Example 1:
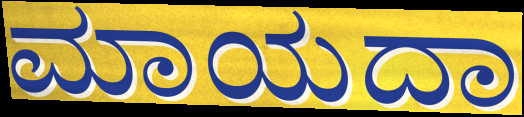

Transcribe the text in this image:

ಮಾಯದಾ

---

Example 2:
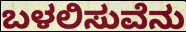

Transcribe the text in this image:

ಬಳಲಿಸುವೆನು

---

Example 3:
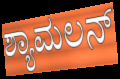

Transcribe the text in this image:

ಶ್ಯಾಮಲನ್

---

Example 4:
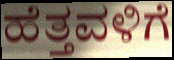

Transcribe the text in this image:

ಹೆತ್ತವಳಿಗೆ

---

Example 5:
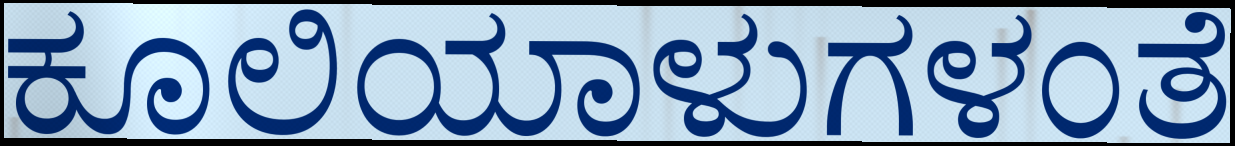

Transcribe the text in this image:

ಕೂಲಿಯಾಳುಗಳಂತೆ